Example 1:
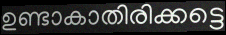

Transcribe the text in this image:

ഉണ്ടാകാതിരിക്കട്ടെ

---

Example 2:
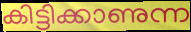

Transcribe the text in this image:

കിട്ടിക്കാണുന്ന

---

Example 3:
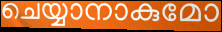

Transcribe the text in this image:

ചെയ്യാനാകുമോ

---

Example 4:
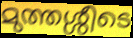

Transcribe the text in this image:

മുത്തശ്ശീടെ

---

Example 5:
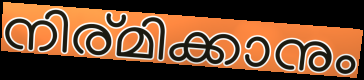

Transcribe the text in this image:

നിര്മിക്കാനും